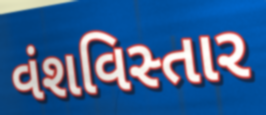
વંશવિસ્તાર